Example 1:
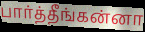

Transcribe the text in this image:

பார்த்தீங்கன்னா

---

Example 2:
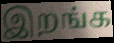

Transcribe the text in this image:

இறங்க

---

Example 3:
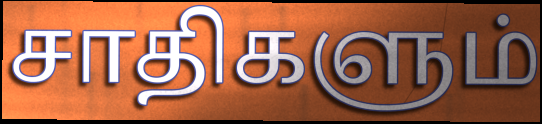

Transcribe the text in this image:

சாதிகளும்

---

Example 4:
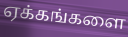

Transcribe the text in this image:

ஏக்கங்களை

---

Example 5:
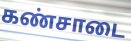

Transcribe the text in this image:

கண்சாடை